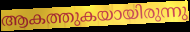
ആകത്തുകയായിരുന്നു